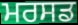
ਮਰਸਡ